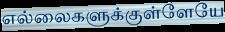
எல்லைகளுக்குள்ளேயே